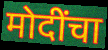
मोदींचा